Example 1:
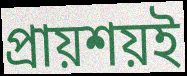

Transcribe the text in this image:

প্রায়শয়ই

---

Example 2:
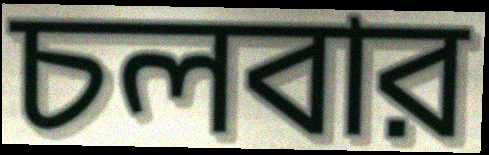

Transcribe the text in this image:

চলবার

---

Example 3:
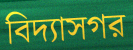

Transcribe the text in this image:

বিদ্যাসগর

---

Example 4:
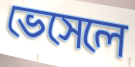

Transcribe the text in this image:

ভেসেলে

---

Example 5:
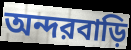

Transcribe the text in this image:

অন্দরবাড়ি